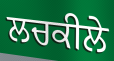
ਲਚਕੀਲੇ